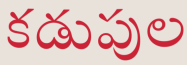
కడుపుల